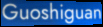
Guoshiguan